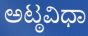
ಅಟ್ಠವಿಧಾ